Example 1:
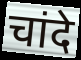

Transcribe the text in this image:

चांदे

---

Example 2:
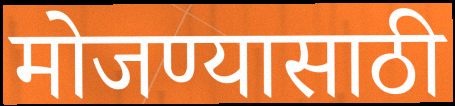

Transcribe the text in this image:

मोजण्यासाठी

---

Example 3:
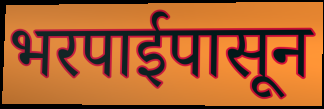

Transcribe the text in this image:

भरपाईपासून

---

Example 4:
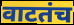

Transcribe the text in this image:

वाटतंच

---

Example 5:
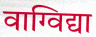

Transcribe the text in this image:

वाग्विद्या